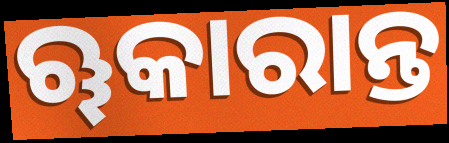
ୠକାରାନ୍ତ